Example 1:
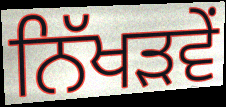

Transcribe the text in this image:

ਨਿੱਖੜਵੇਂ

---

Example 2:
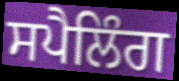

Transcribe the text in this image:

ਸਪੈਲਿੰਗ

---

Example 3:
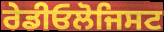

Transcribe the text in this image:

ਰੇਡੀਓਲੋਜਿਸਟ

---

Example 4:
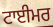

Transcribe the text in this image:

ਟਾਈਮਰ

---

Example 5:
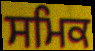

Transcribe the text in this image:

ਸਮਿਕ